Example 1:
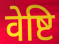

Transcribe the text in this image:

वेष्टि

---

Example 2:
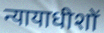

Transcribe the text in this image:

न्यायाधीशों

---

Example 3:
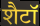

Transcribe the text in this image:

शैटॉ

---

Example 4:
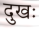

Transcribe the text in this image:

दुखः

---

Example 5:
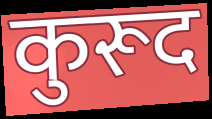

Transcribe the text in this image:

कुरूद